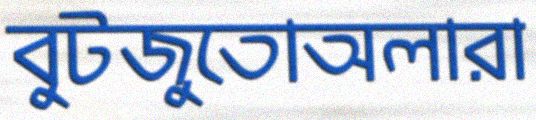
বুটজুতোঅলারা